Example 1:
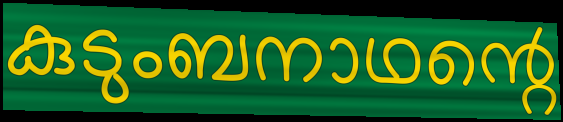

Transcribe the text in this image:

കുടുംബനാഥന്റെ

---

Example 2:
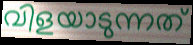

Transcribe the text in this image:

വിളയാടുന്നത്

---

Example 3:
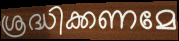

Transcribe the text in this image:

ശ്രദ്ധിക്കണമേ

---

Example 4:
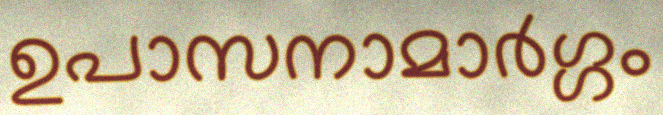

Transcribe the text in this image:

ഉപാസനാമാർഗ്ഗം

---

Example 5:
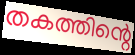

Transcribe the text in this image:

തകത്തിന്റെ